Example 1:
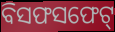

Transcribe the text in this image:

ବିସଫସଫେଟ୍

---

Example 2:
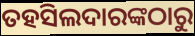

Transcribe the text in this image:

ତହସିଲଦାରଙ୍କଠାରୁ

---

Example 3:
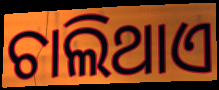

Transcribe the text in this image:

ଚାଲିଥାଏ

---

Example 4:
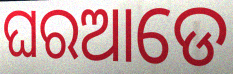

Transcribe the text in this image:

ଘରଆଡେ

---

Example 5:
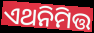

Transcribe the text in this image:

ଏଥନିମିତ୍ତ